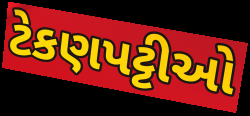
ટેકણપટ્ટીઓ